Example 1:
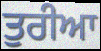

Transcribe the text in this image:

ਤੁਰੀਆ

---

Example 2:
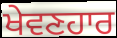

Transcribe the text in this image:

ਖੇਵਣਹਾਰ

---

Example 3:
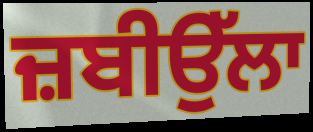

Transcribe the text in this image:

ਜ਼ਬੀਉੱਲਾ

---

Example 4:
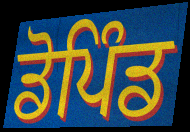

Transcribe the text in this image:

ਡੋਪਿੰਡ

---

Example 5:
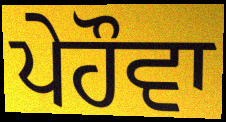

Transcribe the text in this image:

ਪੇਹੌਵਾ